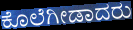
ಕೊಲೆಗೀಡಾದರು